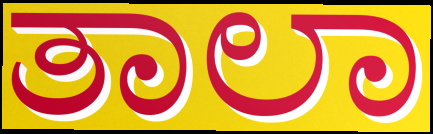
ತಾಲಾ